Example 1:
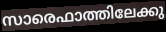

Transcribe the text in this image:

സാരെഫാത്തിലേക്കു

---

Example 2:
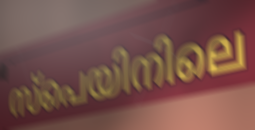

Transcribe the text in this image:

സ്പെയിനിലെ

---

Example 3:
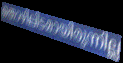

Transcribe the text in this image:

തൊഴിലിടമായിരുന്നില്ല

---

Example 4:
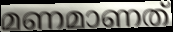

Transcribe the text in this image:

മണമാണത്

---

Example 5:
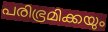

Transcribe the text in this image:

പരിഭ്രമിക്കയും